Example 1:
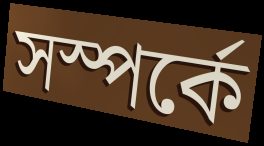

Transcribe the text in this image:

সস্পর্কে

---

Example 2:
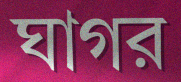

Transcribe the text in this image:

ঘাগর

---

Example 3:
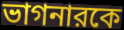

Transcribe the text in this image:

ভাগনারকে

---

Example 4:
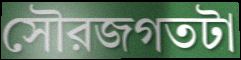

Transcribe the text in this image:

সৌরজগতটা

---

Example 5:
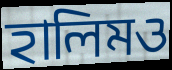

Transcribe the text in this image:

হালিমও